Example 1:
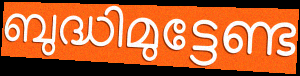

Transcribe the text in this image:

ബുദ്ധിമുട്ടേണ്ട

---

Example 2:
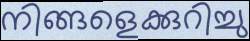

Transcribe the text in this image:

നിങ്ങളെക്കുറിച്ചു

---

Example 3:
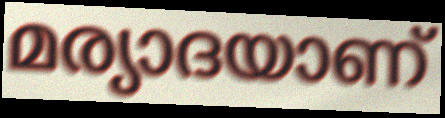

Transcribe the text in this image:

മര്യാദയാണ്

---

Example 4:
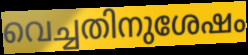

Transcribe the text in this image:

വെച്ചതിനുശേഷം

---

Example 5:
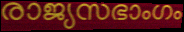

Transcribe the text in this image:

രാജ്യസഭാംഗം